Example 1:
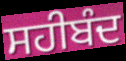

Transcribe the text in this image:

ਸਹੀਬੰਦ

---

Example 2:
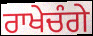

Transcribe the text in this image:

ਰਾਖੇਚੰਗੇ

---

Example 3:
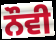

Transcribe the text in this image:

ਨੌਵੀ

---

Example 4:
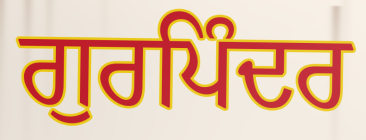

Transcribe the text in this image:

ਗੁਰਪਿੰਦਰ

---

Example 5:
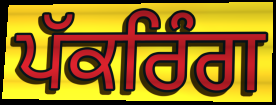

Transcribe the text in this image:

ਪੱਕਰਿੰਗ